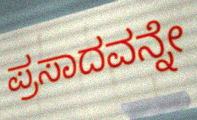
ಪ್ರಸಾದವನ್ನೇ